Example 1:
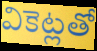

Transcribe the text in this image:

వికెట్లతో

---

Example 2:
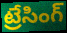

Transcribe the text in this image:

ట్రేసింగ్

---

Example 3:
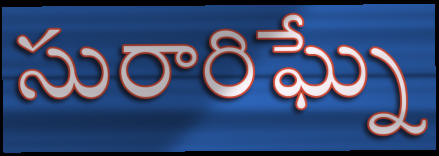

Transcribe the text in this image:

సురారిఘ్నే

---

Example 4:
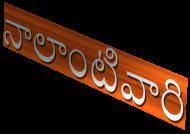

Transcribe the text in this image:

నాలాంటివారి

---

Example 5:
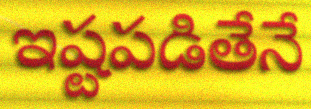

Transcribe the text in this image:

ఇష్టపడితేనే